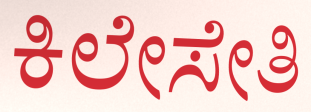
ಕಿಲೇಸೇತಿ